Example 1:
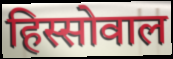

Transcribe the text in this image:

हिस्सोवाल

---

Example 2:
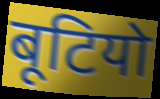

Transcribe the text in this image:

बूटियो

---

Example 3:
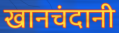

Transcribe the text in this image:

खानचंदानी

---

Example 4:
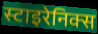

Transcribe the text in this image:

स्टाइरेनिक्स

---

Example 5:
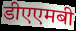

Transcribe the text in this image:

डीएएमबी